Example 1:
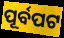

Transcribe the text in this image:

ପୂର୍ବପଟ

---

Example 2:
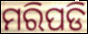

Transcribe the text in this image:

ମରିପଡି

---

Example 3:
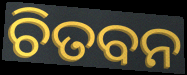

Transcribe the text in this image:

ଚିତବନ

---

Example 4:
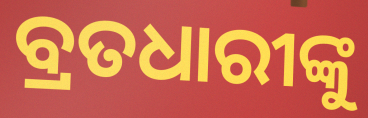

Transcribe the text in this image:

ବ୍ରତଧାରୀଙ୍କୁ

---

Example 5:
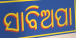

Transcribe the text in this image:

ସାବିଅପା